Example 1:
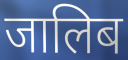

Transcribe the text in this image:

जालिब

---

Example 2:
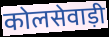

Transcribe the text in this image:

कोलसेवाड़ी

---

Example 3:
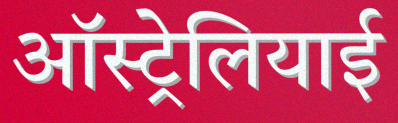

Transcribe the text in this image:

ऑस्‍ट्रेलियाई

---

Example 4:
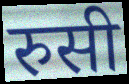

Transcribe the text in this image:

रुसी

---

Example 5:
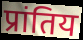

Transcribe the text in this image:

प्रांतिय